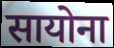
सायोना